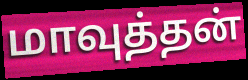
மாவுத்தன்